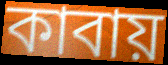
কাবায়